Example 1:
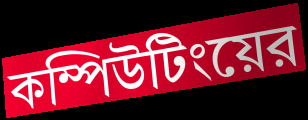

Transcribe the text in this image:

কম্পিউটিংয়ের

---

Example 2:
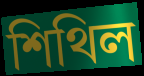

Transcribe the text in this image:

শিথিল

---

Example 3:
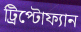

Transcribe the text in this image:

ট্রিপ্টোফ্যান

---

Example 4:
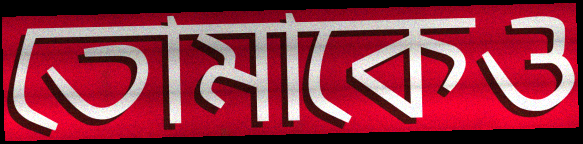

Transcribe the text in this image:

তোমাকেও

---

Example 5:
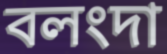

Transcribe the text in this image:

বলংদা